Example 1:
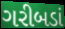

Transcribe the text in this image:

ગરીબડાં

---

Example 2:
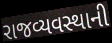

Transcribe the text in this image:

રાજવ્યવસ્થાની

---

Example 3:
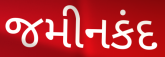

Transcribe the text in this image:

જમીનકંદ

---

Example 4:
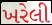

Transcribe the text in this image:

ખરેલી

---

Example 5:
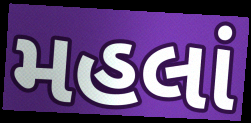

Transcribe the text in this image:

મહલાં